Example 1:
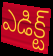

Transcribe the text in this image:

ఎడిక్ట్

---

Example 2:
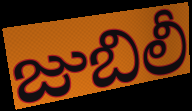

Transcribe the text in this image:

జుబిలీ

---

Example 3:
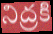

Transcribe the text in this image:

నిద్రకి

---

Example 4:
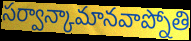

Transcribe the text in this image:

సర్వాన్కామానవాప్నోతి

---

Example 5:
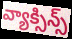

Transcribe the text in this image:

వ్యాక్సిన్స్